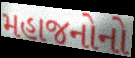
મહાજનોનો